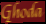
Ghoda